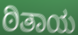
ಠಿತಾಯ